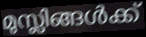
മുസ്ലിങ്ങൾക്ക്